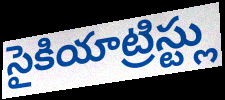
సైకియాట్రిస్ట్లు